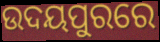
ଉଦୟପୁରରେ